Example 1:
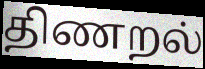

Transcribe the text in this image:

திணறல்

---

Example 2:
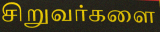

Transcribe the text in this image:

சிறுவர்களை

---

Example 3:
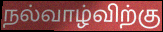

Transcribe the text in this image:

நல்வாழ்விற்கு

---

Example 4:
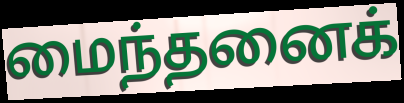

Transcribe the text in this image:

மைந்தனைக்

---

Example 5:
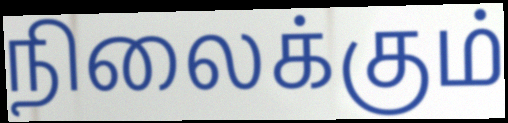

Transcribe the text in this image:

நிலைக்கும்